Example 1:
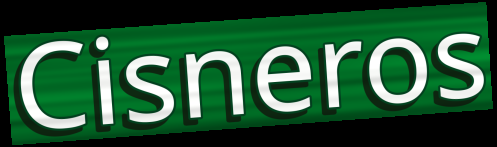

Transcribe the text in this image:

Cisneros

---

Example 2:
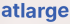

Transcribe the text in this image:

atlarge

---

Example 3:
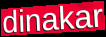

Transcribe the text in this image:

dinakar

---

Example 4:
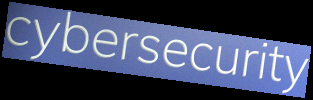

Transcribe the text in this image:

cybersecurity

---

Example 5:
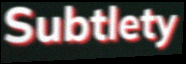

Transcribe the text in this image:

Subtlety